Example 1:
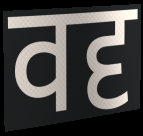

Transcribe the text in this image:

वदृ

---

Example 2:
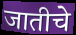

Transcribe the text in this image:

जातीचे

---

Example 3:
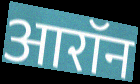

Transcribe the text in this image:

आरॉन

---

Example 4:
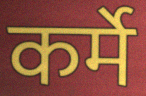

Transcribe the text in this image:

कर्मे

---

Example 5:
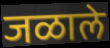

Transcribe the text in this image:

जळाले